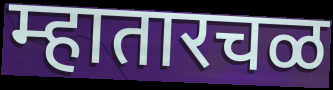
म्हातारचळ